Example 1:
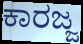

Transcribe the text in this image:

ಕಾರಜ್ಜ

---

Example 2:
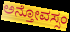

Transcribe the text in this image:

ಅನ್ತೋವಸ್ಸಂ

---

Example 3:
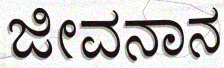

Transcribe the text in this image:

ಜೀವನಾನ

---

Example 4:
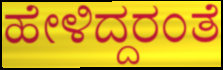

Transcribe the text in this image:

ಹೇಳಿದ್ದರಂತೆ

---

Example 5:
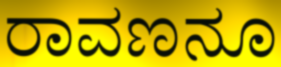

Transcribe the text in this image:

ರಾವಣನೂ